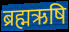
ब्रह्मऋषि